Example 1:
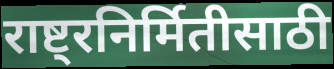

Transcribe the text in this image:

राष्ट्रनिर्मितीसाठी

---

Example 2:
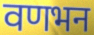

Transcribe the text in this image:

वणभन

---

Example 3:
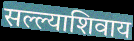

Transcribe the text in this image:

सल्ल्याशिवाय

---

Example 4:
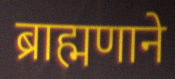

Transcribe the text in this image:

ब्राह्मणाने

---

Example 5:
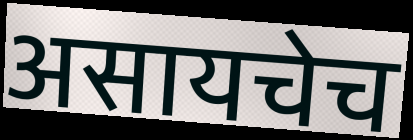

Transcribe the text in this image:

असायचेच